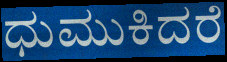
ಧುಮುಕಿದರೆ